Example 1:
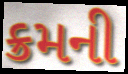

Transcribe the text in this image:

ક્રમની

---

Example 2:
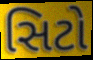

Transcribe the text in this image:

સિટો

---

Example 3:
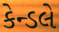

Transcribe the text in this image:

કેન્ડલે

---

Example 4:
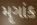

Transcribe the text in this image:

મૃગાંક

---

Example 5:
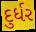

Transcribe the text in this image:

દુર્ધર